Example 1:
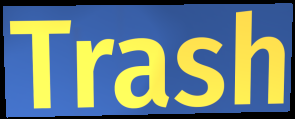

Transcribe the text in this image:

Trash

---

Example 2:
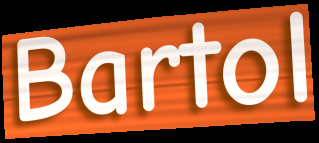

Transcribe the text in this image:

Bartol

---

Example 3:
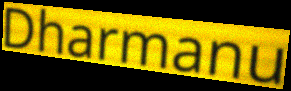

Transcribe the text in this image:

Dharmanu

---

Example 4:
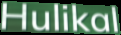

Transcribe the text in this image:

Hulikal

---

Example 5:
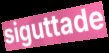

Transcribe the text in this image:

siguttade